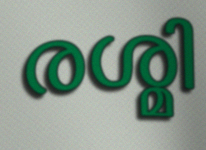
രശ്മി